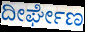
ದೀರ್ಘೇಣ